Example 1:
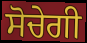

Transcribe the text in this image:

ਸੋਚੇਗੀ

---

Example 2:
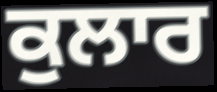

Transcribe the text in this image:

ਕੁਲਾਰ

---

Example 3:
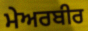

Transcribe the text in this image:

ਮੇਅਰਬੀਰ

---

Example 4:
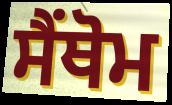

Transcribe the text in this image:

ਸੈਂਥੋਮ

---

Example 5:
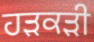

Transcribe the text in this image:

ਹੜਕੜੀ